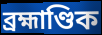
ব্ৰহ্মাণ্ডিক